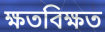
ক্ষতবিক্ষত